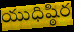
యుధిష్ఠిర